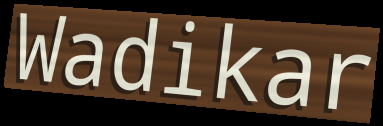
Wadikar